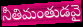
నీతిమంతుడవై